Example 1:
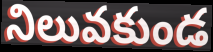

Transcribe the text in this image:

నిలువకుండ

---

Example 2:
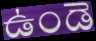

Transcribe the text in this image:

ఉండె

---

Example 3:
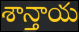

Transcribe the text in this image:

శాన్తాయ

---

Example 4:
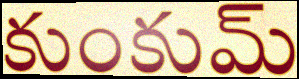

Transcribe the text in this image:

కుంకుమ్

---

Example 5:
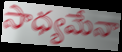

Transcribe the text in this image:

సాధ్యమేనా